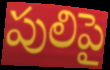
పులిపై